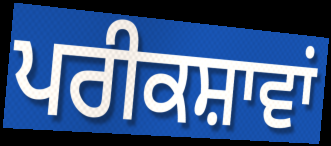
ਪਰੀਕਸ਼ਾਵਾਂ